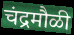
चंद्रमौळी